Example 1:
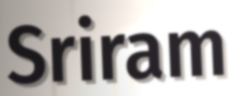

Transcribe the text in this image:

Sriram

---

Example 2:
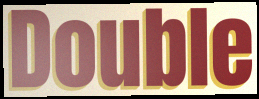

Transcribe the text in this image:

Double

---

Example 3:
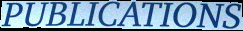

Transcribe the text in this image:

PUBLICATIONS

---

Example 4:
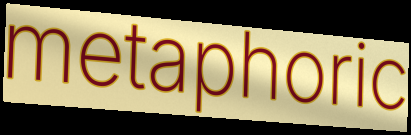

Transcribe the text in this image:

metaphoric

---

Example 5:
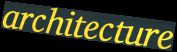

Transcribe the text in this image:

architecture